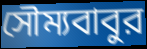
সৌম্যবাবুর